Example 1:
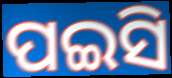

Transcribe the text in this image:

ପଇସି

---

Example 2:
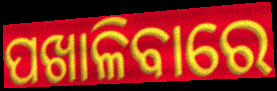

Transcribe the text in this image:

ପଖାଳିବାରେ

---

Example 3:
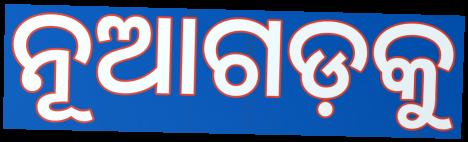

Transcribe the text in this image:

ନୂଆଗଡ଼କୁ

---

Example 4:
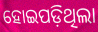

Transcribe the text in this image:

ହୋଇପଡ଼ିଥିଲା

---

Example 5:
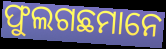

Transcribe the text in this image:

ଫୁଲଗଛମାନେ